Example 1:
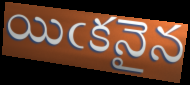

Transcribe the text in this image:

యిఁకనైన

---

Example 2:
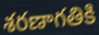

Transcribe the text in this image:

శరణాగతికి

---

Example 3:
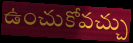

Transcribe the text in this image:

ఉంచుకోవచ్చు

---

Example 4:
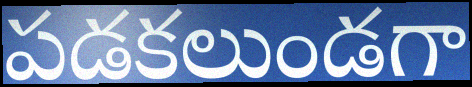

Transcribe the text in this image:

పడకలుండగా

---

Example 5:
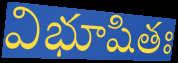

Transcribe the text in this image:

విభూషితః